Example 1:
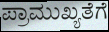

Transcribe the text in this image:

ಪ್ರಾಮುಖ್ಯತೆಗೆ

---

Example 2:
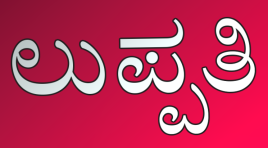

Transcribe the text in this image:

ಲುಪ್ಪತಿ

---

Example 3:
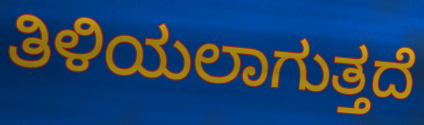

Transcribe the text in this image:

ತಿಳಿಯಲಾಗುತ್ತದೆ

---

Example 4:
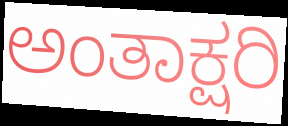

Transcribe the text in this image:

ಅಂತಾಕ್ಷರಿ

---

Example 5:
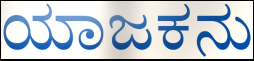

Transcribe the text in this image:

ಯಾಜಕನು